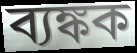
ব্যঙ্কক